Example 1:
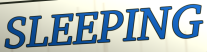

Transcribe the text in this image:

SLEEPING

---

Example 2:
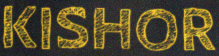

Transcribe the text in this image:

KISHOR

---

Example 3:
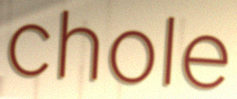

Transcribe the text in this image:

chole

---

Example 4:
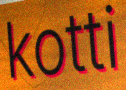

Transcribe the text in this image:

kotti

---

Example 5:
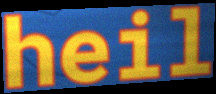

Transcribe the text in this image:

heil